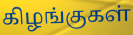
கிழங்குகள்